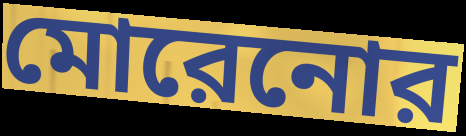
মোরেনোর